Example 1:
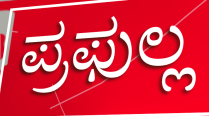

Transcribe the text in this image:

ಪ್ರಫುಲ್ಲ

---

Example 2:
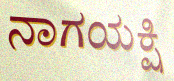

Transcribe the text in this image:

ನಾಗಯಕ್ಷಿ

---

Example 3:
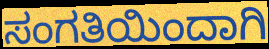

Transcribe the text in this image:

ಸಂಗತಿಯಿಂದಾಗಿ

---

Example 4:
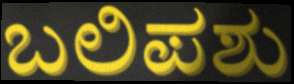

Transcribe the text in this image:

ಬಲಿಪಶು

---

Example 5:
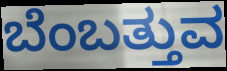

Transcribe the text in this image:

ಬೆಂಬತ್ತುವ